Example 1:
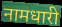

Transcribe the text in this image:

नामधारी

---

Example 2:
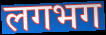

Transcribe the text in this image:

लगभग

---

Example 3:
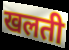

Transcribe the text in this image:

खलती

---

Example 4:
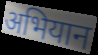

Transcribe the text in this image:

अभियान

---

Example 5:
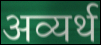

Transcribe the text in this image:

अव्यर्थ